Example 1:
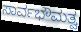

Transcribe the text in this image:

ಸಾರ್ವಭೌಮತ್ವ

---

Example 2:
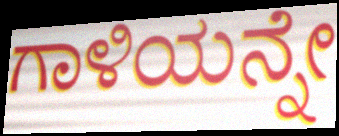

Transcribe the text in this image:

ಗಾಳಿಯನ್ನೇ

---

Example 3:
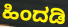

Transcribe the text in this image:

ಹಿಂದಡಿ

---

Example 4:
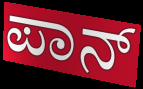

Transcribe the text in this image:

ಪಾನ್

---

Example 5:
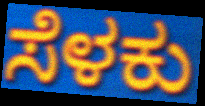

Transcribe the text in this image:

ಸೆಳಕು